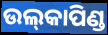
ଉଲ୍‌କାପିଣ୍ଡ